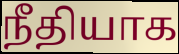
நீதியாக